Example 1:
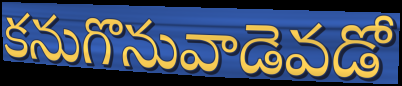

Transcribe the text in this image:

కనుగొనువాడెవడో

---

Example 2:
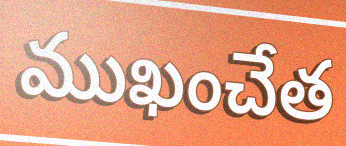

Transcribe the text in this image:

ముఖంచేత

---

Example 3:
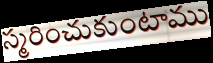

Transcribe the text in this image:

స్మరించుకుంటాము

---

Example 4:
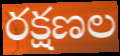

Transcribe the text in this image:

రక్షణల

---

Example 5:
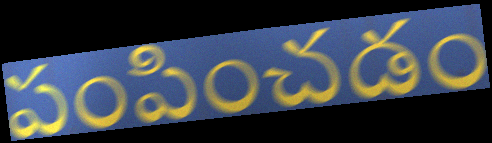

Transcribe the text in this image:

పంపించడం